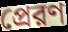
প্রেরণ